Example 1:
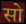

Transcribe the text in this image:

सो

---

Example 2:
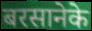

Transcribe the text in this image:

बरसानेके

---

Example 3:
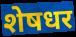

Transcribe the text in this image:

शेषधर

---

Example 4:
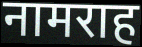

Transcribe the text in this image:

नामराह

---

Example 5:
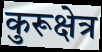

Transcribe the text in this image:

कुरूक्षेत्र